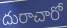
దురాచారో